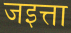
जइत्ता